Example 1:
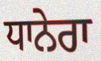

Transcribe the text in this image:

ਧਾਨੇਰਾ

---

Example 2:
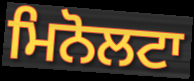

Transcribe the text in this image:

ਮਿਨੋਲਟਾ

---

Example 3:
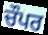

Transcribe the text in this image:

ਚੌਪਰ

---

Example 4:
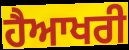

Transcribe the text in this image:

ਹੈਆਖਰੀ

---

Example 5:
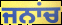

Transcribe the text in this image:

ਜਨਾਂਚ